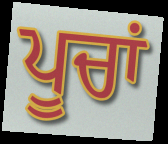
ਪੂਚਾਂ